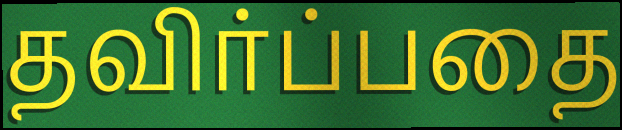
தவிர்ப்பதை